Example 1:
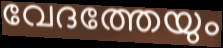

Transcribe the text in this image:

വേദത്തേയും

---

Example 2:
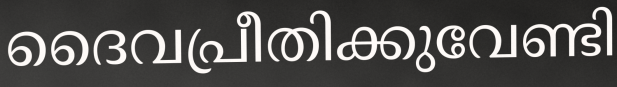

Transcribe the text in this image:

ദൈവപ്രീതിക്കുവേണ്ടി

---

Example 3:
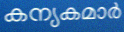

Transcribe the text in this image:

കന്യകമാർ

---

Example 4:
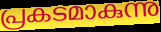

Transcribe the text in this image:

പ്രകടമാകുന്നു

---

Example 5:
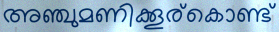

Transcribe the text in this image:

അഞ്ചുമണിക്കൂര്കൊണ്ട്